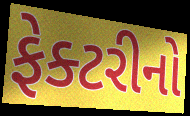
ફેક્ટરીનો